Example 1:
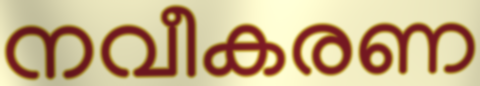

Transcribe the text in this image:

നവീകരണ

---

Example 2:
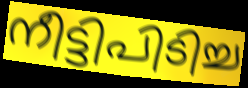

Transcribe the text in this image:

നീട്ടിപിടിച്ച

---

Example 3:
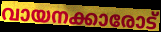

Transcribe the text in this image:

വായനക്കാരോട്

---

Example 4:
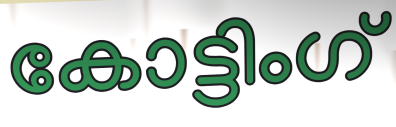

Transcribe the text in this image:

കോട്ടിംഗ്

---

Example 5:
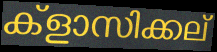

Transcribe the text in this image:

ക്ളാസിക്കല്